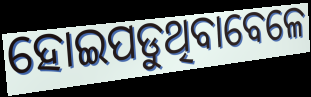
ହୋଇପଡୁଥିବାବେଳେ